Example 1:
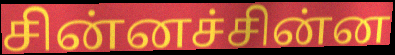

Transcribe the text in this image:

சின்னச்சின்ன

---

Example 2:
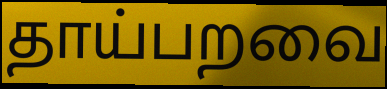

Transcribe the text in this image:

தாய்பறவை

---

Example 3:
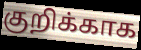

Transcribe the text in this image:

குறிக்காக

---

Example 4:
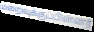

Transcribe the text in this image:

மறைவுக்குப்பின்னர்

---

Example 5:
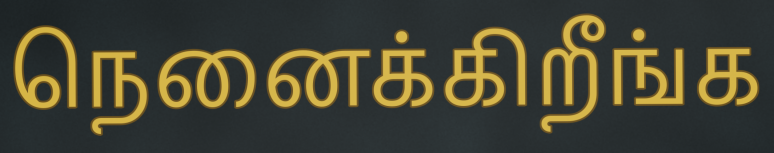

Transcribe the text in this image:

நெனைக்கிறீங்க